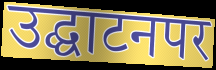
उद्घाटनपर